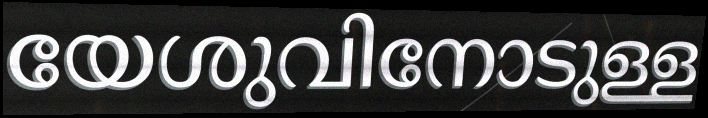
യേശുവിനോടുള്ള